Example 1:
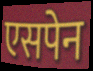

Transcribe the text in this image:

एसपेन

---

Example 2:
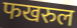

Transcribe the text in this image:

फखरुल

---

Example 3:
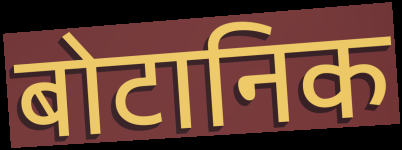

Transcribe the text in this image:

बोटानिक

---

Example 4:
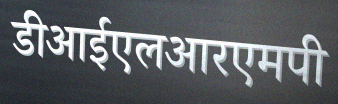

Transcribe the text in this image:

डीआईएलआरएमपी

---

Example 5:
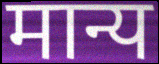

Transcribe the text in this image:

मान्य